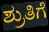
ಶ್ರುತಿಗೆ